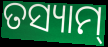
ତସ୍ୟାମ୍